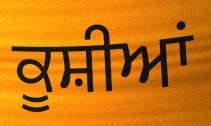
ਕੂਸ਼ੀਆਂ